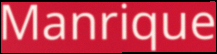
Manrique